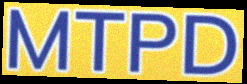
MTPD